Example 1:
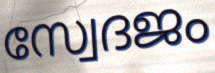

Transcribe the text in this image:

സ്വേദജം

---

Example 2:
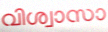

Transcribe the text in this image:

വിശ്വാസാ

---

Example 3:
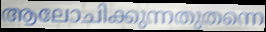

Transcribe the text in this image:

ആലോചിക്കുന്നതുതന്നെ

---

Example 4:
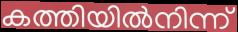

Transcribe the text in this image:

കത്തിയിൽനിന്ന്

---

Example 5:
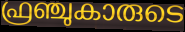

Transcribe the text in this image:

ഫ്രഞ്ചുകാരുടെ